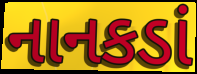
નાનકડાં